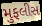
મુફલીસ